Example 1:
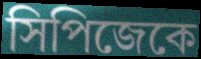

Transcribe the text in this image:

সিপিজেকে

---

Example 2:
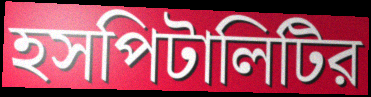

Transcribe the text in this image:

হসপিটালিটির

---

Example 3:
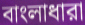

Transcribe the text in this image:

বাংলাধারা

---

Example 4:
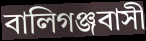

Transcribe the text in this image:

বালিগঞ্জবাসী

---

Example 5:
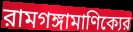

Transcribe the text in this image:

রামগঙ্গামাণিক্যের